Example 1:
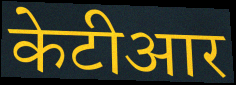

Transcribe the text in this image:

केटीआर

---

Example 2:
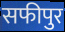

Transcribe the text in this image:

सफीपुर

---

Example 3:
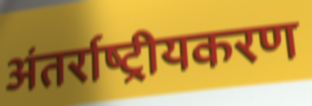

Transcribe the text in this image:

अंतर्राष्ट्रीयकरण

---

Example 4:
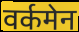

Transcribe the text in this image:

वर्कमेन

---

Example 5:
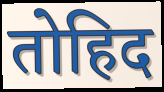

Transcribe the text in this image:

तोहिद